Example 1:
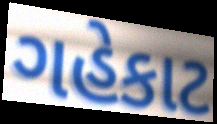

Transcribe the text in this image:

ગહેકાટ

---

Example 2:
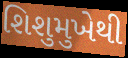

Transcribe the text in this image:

શિશુમુખેથી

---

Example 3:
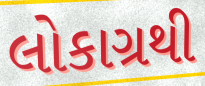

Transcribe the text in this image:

લોકાગ્રથી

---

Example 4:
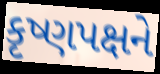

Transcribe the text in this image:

કૃષ્ણપક્ષને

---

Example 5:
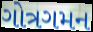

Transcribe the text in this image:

ગોત્રગમન